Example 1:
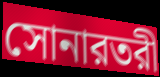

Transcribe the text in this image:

সোনারতরী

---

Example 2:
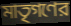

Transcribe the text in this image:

মাতৃগণের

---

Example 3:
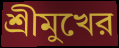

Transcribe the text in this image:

শ্রীমুখের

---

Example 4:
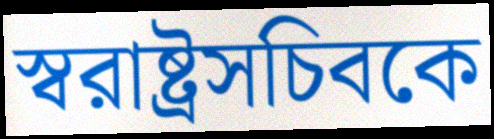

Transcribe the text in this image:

স্বরাষ্ট্রসচিবকে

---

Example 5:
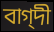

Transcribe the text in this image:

বাগ্‌দী